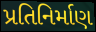
પ્રતિનિર્માણ